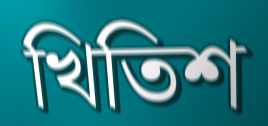
খিতিশ